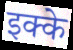
इक्के